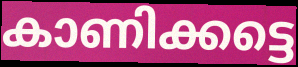
കാണിക്കട്ടെ